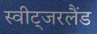
स्वीट्जरलैंड